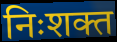
निःशक्त